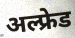
अल्फ्रेड